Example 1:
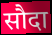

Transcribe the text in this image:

सौदा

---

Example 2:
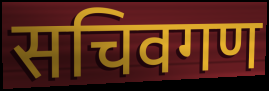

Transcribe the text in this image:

सचिवगण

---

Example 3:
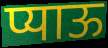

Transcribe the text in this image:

प्याऊ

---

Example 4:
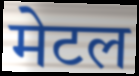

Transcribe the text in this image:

मेटल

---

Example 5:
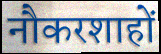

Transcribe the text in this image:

नौकरशाहों